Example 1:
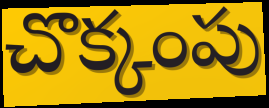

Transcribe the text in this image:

చొక్కంపు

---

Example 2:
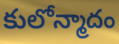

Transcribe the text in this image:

కులోన్మాదం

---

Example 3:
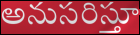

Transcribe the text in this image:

అనుసరిస్తూ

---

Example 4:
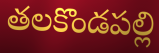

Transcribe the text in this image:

తలకొండపల్లి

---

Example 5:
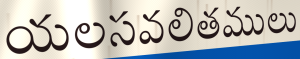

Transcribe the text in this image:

యలసవలితములు